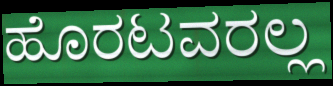
ಹೊರಟವರಲ್ಲ